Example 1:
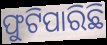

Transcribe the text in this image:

ଫୁଟିପାରିଛି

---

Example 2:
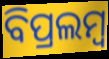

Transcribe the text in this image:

ବିପ୍ରଲମ୍ବ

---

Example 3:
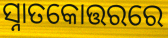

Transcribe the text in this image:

ସ୍ନାତକୋତ୍ତରରେ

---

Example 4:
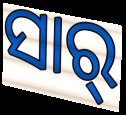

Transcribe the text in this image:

ସାର୍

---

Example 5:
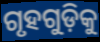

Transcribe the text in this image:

ଗୃହଗୁଡ଼ିକୁ